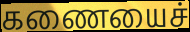
கணையைச்